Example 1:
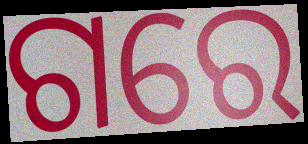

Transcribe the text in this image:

ଗରେ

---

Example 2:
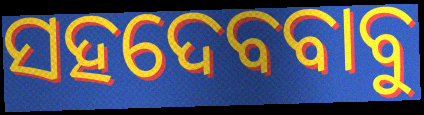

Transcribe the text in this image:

ସହଦେବବାବୁ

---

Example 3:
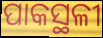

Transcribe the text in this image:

ପାକସ୍ଥଳୀ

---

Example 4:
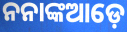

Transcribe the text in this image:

ନନାଙ୍କଆଡ଼େ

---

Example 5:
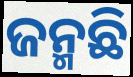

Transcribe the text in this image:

ଜନ୍ମଛି